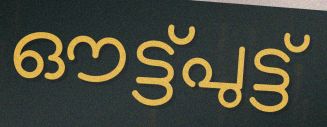
ഔട്ട്പുട്ട്